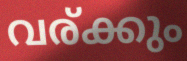
വര്ക്കും